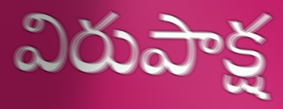
విరుపాక్ష